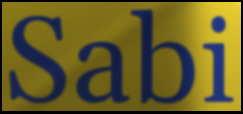
Sabi